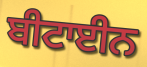
ਬੀਟਾਈਨ